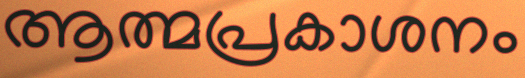
ആത്മപ്രകാശനം